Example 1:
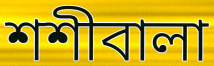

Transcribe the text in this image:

শশীবালা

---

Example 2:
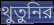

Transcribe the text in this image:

থুতুনির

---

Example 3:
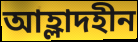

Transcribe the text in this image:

আহ্লাদহীন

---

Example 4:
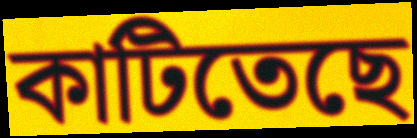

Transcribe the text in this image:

কাটিতেছে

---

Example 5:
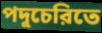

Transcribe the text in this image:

পদুচেরিতে